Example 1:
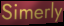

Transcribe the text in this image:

Simerly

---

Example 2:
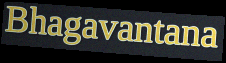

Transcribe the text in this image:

Bhagavantana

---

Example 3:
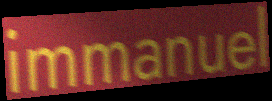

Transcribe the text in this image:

immanuel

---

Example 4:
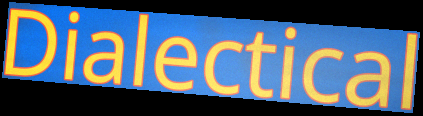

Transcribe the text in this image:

Dialectical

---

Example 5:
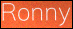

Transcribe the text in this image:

Ronny